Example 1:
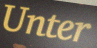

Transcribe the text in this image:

Unter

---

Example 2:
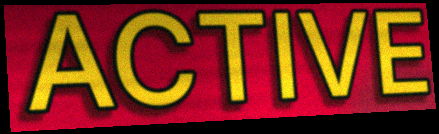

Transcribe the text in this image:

ACTIVE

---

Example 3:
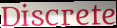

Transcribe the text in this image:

Discrete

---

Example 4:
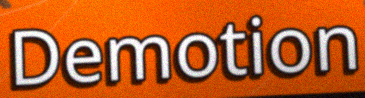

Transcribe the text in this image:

Demotion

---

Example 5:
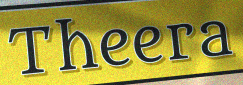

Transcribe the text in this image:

Theera